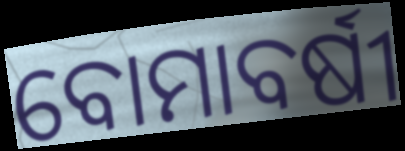
ବୋମାବର୍ଷୀ